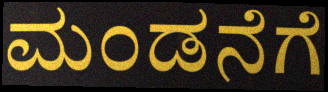
ಮಂಡನೆಗೆ